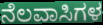
ನೆಲವಾಸಿಗಳ